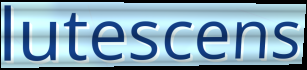
lutescens